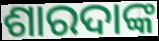
ଶାରଦାଙ୍କ